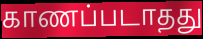
காணப்படாதது